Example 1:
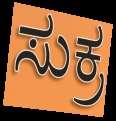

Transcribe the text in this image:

ಸುಕ್ರ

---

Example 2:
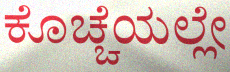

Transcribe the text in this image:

ಕೊಚ್ಚೆಯಲ್ಲೇ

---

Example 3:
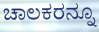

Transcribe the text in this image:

ಚಾಲಕರನ್ನೂ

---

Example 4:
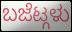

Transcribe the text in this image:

ಬಜೆಟ್ಗಳು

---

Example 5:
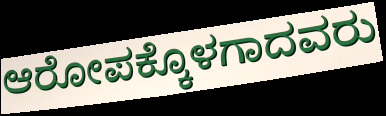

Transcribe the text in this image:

ಆರೋಪಕ್ಕೊಳಗಾದವರು